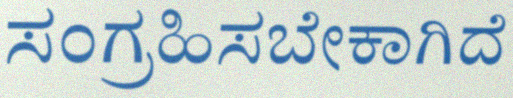
ಸಂಗ್ರಹಿಸಬೇಕಾಗಿದೆ